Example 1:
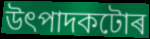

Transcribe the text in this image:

উৎপাদকটোৰ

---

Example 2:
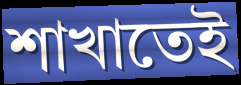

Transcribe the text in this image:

শাখাতেই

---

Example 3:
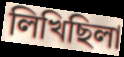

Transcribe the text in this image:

লিখিছিলা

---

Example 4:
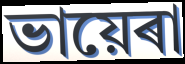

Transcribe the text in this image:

ভায়েৰা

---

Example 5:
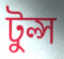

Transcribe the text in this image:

টুল্স